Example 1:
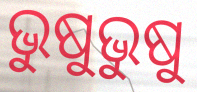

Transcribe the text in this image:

ଭୁଷୁଭୁଷୁ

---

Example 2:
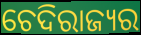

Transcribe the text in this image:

ଚେଦିରାଜ୍ୟର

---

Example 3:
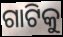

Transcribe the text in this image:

ଗାଟିକୁ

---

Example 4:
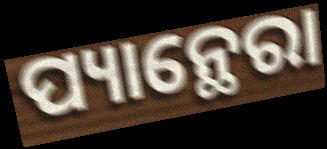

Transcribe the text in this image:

ପ୍ୟାନ୍ଥେରା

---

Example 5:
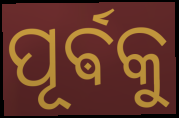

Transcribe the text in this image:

ପୂର୍ଵକୁ